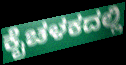
ಕೈಚಳಕದಲ್ಲಿ